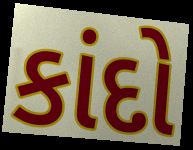
કાંદો